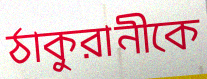
ঠাকুরানীকে